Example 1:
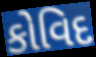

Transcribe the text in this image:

કોવિદ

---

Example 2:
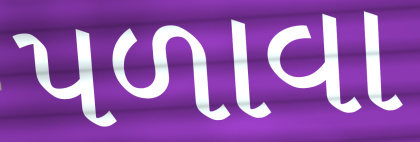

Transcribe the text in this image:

પળાવા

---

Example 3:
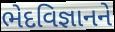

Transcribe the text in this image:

ભેદવિજ્ઞાનને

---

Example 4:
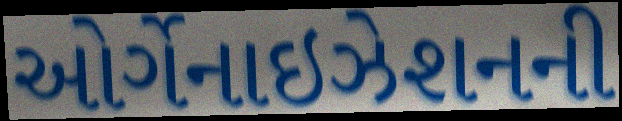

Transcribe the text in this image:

ઓર્ગેનાઇઝેશનની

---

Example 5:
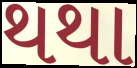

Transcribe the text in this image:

થથા